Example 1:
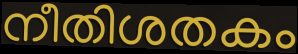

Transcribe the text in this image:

നീതിശതകം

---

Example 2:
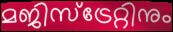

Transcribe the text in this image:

മജിസ്ട്രേറ്റിനും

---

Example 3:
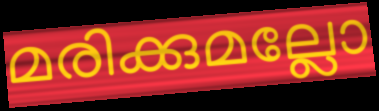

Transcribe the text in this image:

മരിക്കുമല്ലോ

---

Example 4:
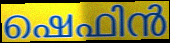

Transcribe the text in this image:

ഷെഫിൻ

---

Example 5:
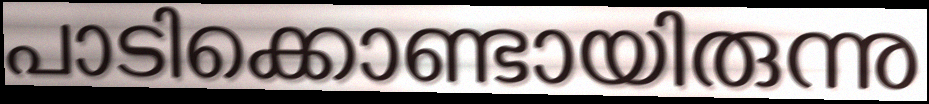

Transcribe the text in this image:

പാടിക്കൊണ്ടായിരുന്നു